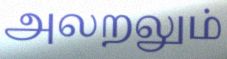
அலறலும்